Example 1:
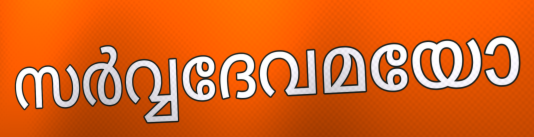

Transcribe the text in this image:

സർവ്വദേവമയോ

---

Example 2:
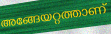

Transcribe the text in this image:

അങ്ങേയറ്റത്താണ്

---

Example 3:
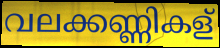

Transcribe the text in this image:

വലക്കണ്ണികള്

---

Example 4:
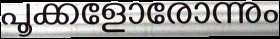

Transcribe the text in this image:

പൂക്കളോരോന്നും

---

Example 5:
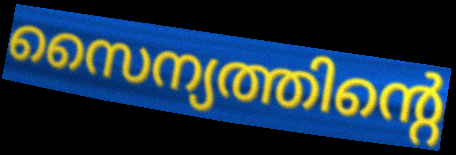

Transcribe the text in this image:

സൈന്യത്തിന്റെ